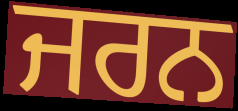
ਜਰਨ